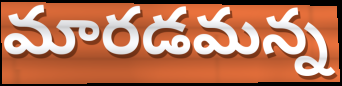
మారడమన్న